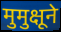
मुमुक्षूने